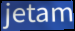
jetam